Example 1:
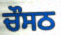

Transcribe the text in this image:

ਚੌਸਠ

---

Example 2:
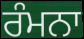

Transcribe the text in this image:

ਰੰਮਨਾ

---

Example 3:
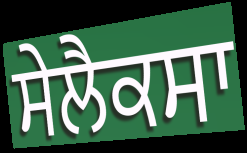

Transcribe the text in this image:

ਸੇਲੈਕਸਾ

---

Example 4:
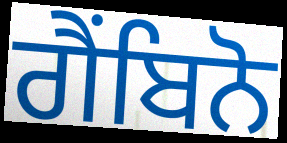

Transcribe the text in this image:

ਗੈਂਬਿਨੋ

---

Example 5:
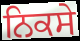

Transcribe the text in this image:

ਨਿਕਸੇ